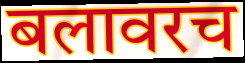
बलावरच